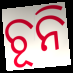
ଚୂନି